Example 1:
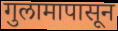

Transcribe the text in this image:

गुलामापासून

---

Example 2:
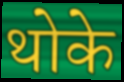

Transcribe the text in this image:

थोके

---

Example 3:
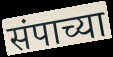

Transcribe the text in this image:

संपाच्या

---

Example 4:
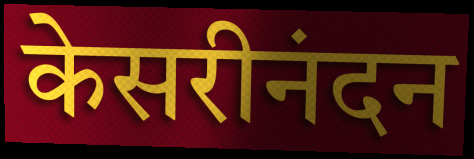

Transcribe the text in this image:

केसरीनंदन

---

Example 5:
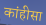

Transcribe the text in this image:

कांहीसा